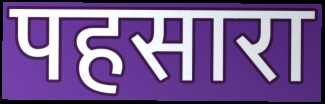
पहसारा